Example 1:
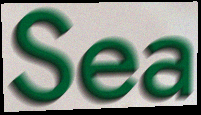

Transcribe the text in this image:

Sea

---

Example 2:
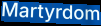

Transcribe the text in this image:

Martyrdom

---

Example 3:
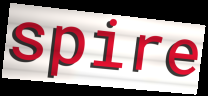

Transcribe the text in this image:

spire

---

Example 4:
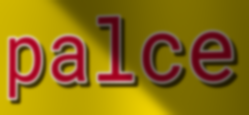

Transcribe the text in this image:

palce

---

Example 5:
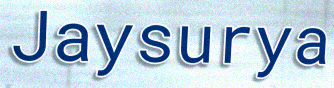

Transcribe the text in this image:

Jaysurya